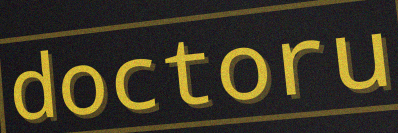
doctoru